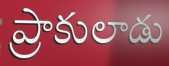
ప్రాకులాడు